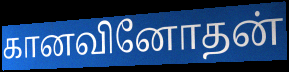
கானவினோதன்